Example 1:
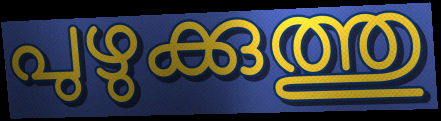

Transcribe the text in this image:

പുഴുക്കുത്തു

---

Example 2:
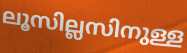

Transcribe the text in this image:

ലൂസില്ലസിനുള്ള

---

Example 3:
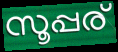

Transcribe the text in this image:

സൂപ്പര്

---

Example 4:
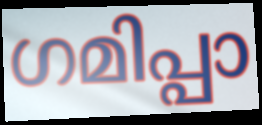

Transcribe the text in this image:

ഗമിപ്പാ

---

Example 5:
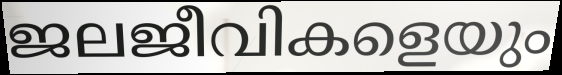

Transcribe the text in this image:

ജലജീവികളെയും